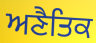
ਅਣੈਤਿਕ